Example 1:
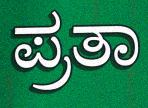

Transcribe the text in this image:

ಪ್ರತಾ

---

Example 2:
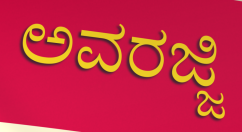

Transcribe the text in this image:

ಅವರಜ್ಜಿ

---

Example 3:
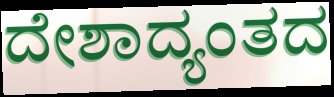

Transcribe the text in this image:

ದೇಶಾದ್ಯಂತದ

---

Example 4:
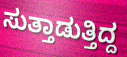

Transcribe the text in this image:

ಸುತ್ತಾಡುತ್ತಿದ್ದ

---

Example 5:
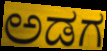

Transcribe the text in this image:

ಅಡಗ